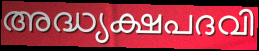
അദ്ധ്യക്ഷപദവി